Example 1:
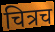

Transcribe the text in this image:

चित्रच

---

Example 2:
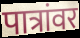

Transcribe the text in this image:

पात्रांवर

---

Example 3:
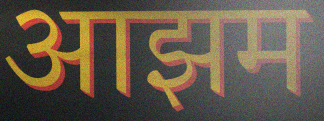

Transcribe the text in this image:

आझम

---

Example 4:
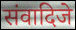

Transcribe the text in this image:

संवादिजे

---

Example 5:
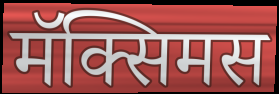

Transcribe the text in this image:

मॅक्सिमस